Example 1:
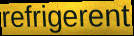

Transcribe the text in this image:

refrigerent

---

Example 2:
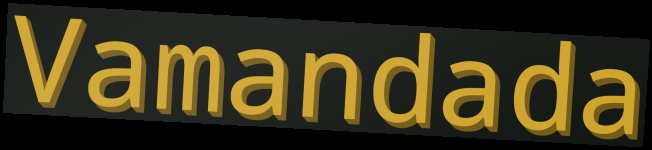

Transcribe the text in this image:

Vamandada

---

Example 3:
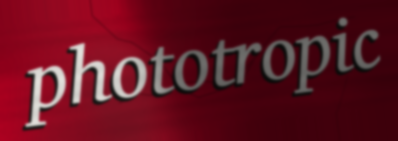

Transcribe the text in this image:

phototropic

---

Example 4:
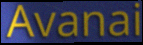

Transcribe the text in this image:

Avanai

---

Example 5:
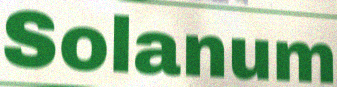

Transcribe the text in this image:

Solanum